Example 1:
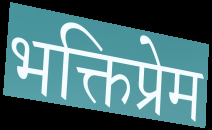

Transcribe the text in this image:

भक्तिप्रेम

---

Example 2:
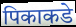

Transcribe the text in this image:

पिकाकडे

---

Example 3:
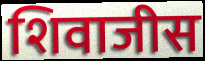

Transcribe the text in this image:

शिवाजीस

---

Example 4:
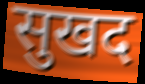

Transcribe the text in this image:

सुखद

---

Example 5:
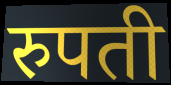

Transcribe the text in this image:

रुपती